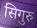
सिगुरु